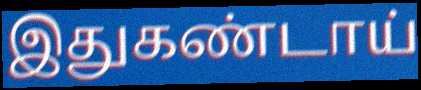
இதுகண்டாய்